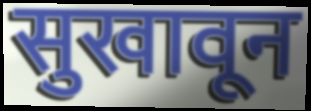
सुखावून